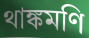
থাঙ্কমণি